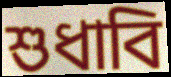
শুধাবি